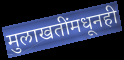
मुलाखतींमधूनही